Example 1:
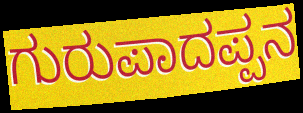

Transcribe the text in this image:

ಗುರುಪಾದಪ್ಪನ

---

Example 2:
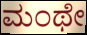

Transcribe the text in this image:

ಮಂಥೇ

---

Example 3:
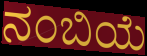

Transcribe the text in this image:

ನಂಬಿಯೆ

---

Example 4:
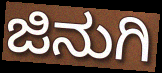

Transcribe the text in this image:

ಜಿನುಗಿ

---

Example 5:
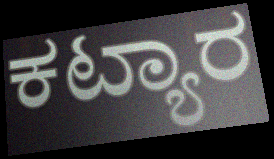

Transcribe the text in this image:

ಕಟ್ಯಾರ